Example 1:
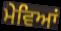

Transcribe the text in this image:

ਮੇਵਿਆਂ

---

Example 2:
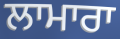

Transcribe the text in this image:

ਲਾਮਾਰਾ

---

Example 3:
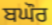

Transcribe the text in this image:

ਬਘੌਰ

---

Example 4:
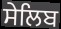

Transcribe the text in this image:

ਸੇਲਿਬ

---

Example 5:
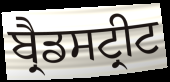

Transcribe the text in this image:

ਬ੍ਰੈਡਸਟ੍ਰੀਟ